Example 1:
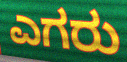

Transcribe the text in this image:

ಎಗರು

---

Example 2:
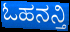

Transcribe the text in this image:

ಓಹನನ್ತಿ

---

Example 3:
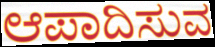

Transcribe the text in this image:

ಆಪಾದಿಸುವ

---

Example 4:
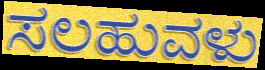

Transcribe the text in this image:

ಸಲಹುವಳು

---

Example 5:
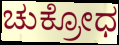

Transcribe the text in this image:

ಚುಕ್ರೋಧ